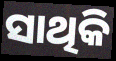
ସାଥିକି